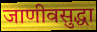
जाणीवसुद्धा